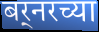
बर्नरच्या